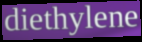
diethylene